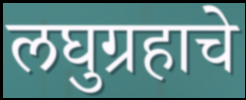
लघुग्रहाचे